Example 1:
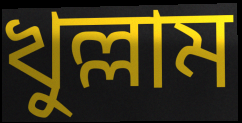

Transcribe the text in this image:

খুল্লাম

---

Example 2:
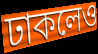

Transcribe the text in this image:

ঢাকলেও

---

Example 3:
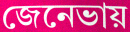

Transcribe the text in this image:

জেনেভায়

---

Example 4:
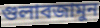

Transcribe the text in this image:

গুলাবজামুন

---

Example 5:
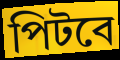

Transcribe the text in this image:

পিটবে